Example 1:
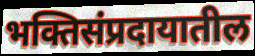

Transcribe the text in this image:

भक्तिसंप्रदायातील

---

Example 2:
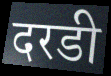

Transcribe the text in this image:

दरडी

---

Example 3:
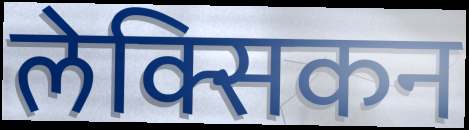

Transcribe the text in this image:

लेक्सिकन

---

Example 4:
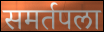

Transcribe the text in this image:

समर्तपला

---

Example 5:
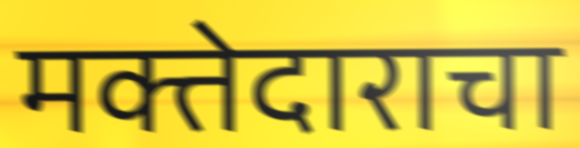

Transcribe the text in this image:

मक्तेदाराचा